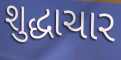
શુદ્ધાચાર